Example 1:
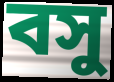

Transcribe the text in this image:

বসু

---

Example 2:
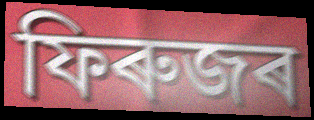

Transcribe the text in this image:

ফিৰুজৰ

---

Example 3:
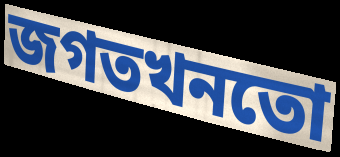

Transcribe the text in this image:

জগতখনতো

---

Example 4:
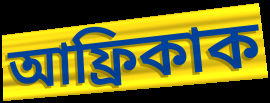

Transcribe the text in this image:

আফ্ৰিকাক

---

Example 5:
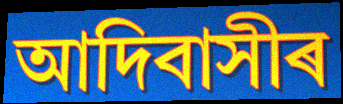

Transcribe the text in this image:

আদিবাসীৰ